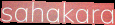
sahakara